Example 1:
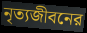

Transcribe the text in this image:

নৃত্যজীবনের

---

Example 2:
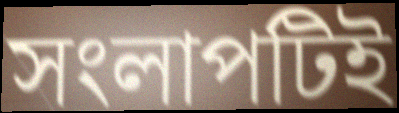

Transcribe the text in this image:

সংলাপটিই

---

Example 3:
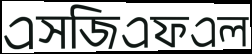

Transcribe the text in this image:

এসজিএফএল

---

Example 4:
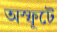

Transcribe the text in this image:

অস্ফূটে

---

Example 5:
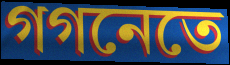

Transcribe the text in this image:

গগনেতে